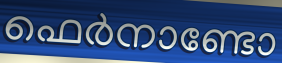
ഫെർനാണ്ടോ